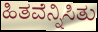
ಹಿತವೆನ್ನಿಸಿತು